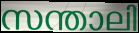
സന്താലി